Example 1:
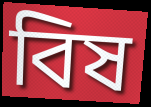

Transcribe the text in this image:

বিষ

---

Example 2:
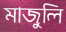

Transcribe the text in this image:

মাজুলি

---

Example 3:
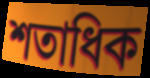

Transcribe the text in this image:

শতাধিক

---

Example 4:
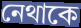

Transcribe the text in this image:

নেথাকে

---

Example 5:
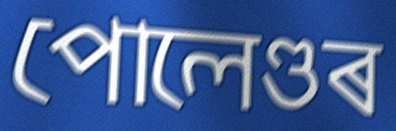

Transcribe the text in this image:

পোলেণ্ডৰ